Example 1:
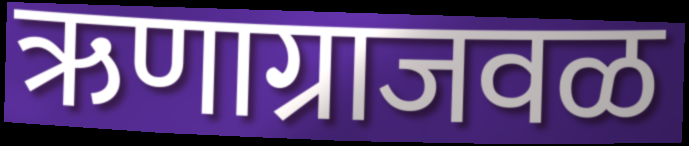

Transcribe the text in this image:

ऋणाग्राजवळ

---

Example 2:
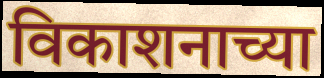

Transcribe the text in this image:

विकाशनाच्या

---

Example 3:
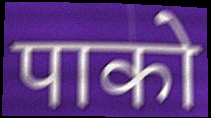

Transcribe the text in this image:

पाको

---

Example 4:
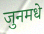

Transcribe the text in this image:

जुनमधे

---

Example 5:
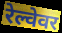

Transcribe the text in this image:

रेल्वेवर